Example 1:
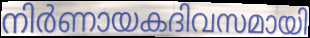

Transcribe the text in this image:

നിർണായകദിവസമായി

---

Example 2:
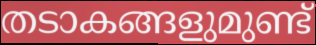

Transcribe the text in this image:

തടാകങ്ങളുമുണ്ട്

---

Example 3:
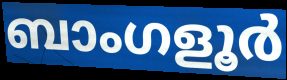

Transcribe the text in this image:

ബാംഗളൂർ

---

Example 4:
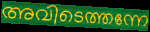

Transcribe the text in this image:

അവിടെത്തന്നേ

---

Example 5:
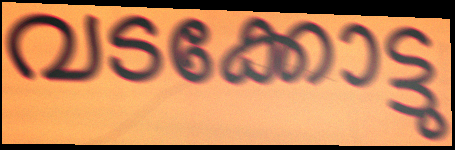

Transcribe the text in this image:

വടക്കോട്ടു